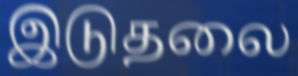
இடுதலை